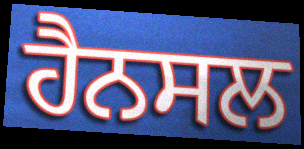
ਹੈਨਸਲ